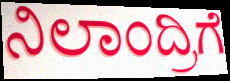
ನಿಲಾಂದ್ರಿಗೆ